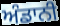
ਅੰਡਾਨੀ